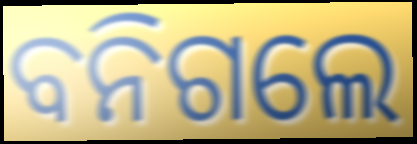
ବନିଗଲେ